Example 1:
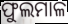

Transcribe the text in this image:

ଫୁଲମାଳ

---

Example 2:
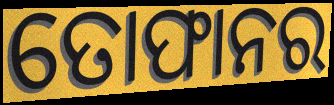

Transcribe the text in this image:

ତୋଫାନର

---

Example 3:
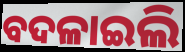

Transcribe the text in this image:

ବଦଳାଇଲି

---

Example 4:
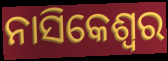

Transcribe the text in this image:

ନାସିକେଶ୍ୱର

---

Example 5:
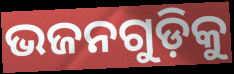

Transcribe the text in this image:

ଭଜନଗୁଡ଼ିକୁ